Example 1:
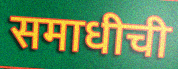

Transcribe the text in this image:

समाधीची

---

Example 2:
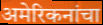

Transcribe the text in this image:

अमेरिकनांचा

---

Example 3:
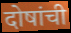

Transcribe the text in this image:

दोषांची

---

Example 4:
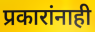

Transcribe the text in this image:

प्रकारांनाही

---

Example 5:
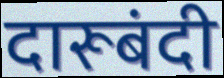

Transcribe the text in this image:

दारूबंदी